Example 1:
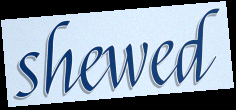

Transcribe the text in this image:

shewed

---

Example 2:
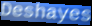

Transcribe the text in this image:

Deshayes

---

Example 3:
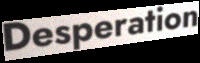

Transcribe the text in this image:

Desperation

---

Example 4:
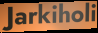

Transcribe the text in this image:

Jarkiholi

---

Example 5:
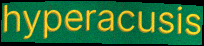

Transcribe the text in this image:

hyperacusis